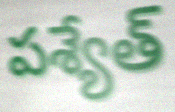
పశ్యేత్